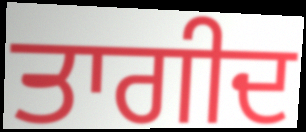
ਤਾਗੀਦ